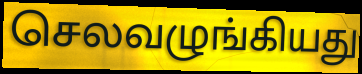
செலவழுங்கியது